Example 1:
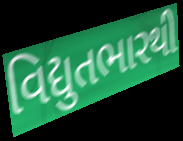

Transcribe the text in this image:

વિદ્યુતભારથી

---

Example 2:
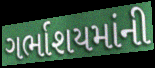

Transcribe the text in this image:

ગર્ભાશયમાંની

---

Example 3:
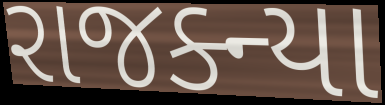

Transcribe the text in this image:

રાજક્ન્યા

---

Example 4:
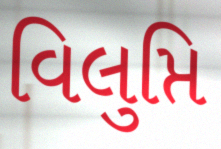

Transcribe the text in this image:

વિલુપ્તિ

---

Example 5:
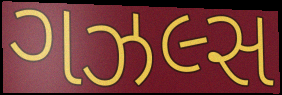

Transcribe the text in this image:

ગઝલ્સ